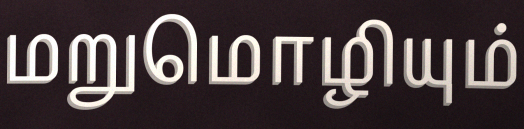
மறுமொழியும்